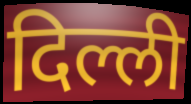
दिल्ली